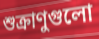
শুক্রাণুগুলো